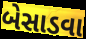
બેસાડવા